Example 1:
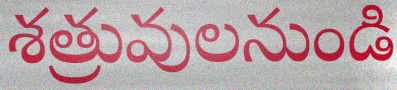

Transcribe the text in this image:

శత్రువులనుండి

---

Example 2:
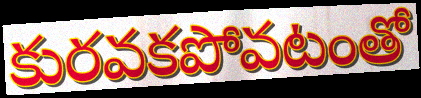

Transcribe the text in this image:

కురవకపోవటంతో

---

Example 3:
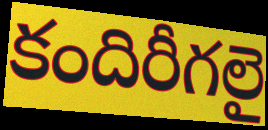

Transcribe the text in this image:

కందిరీగలై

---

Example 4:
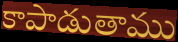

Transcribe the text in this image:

కాపాడుతాము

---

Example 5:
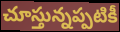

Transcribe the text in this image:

చూస్తున్నప్పటికీ